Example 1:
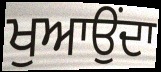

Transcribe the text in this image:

ਖੁਆਉਂਦਾ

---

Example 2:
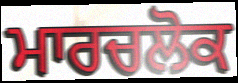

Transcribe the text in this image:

ਮਾਰਚਲੋਕ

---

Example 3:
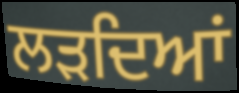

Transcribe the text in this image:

ਲੜਦਿਆਂ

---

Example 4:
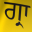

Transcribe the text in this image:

ਗ੍ਰਾ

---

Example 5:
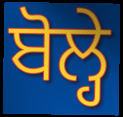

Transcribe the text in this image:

ਬੋਲ੍ਹੇ